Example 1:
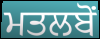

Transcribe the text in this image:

ਮਤਲਬੋਂ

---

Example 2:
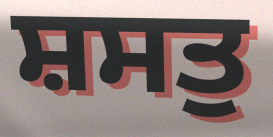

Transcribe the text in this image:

ਸ਼ਸਤੁ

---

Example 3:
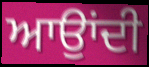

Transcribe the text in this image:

ਆਉਾਂਦੀ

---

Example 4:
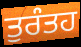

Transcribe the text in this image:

ਤੁਰੰਤਹ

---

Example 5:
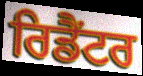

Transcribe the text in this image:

ਰਿਡੈਂਟਰ